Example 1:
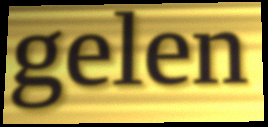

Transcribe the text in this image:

gelen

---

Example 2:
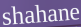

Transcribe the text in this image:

shahane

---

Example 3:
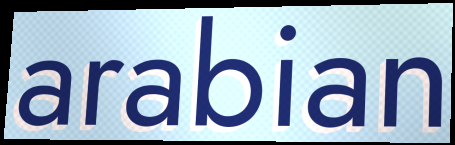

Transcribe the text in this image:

arabian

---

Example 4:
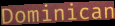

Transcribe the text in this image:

Dominican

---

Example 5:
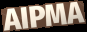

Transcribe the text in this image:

AIPMA